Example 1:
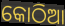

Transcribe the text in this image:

କୋଠିଆ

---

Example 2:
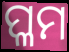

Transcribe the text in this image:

ପ୍ଳମ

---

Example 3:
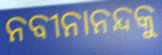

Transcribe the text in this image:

ନବୀନାନନ୍ଦକୁ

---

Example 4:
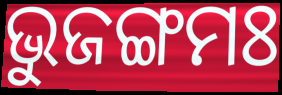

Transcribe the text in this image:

ଭୁଜଙ୍ଗମଃ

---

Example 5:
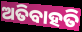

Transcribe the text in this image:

ଅତିବାହତି